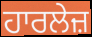
ਹਾਰਲੇਜ਼